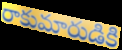
రాకుమారుడికి